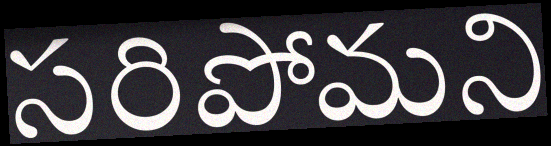
సరిపోమని